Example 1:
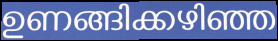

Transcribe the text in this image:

ഉണങ്ങിക്കഴിഞ്ഞ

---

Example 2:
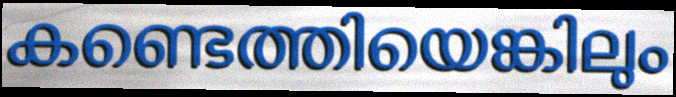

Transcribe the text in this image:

കണ്ടെത്തിയെങ്കിലും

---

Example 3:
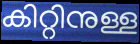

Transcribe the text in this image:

കിറ്റിനുള്ള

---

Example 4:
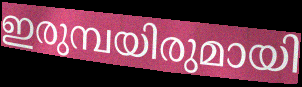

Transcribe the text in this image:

ഇരുമ്പയിരുമായി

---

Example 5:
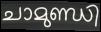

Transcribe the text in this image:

ചാമുണ്ഡി